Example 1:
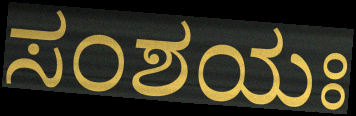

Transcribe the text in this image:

ಸಂಶಯಃ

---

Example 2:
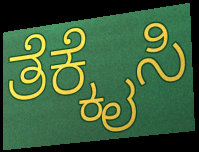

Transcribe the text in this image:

ತೆಕ್ಕೈಸಿ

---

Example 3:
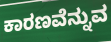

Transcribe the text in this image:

ಕಾರಣವೆನ್ನುವ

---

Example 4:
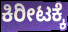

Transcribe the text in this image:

ಕಿರೀಟಕ್ಕೆ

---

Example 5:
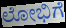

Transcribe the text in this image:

ಲೋಭಿಗೆ